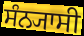
ਸੰਨ੍ਯਾਸੀ